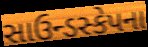
સાઉન્ડસ્કેપના